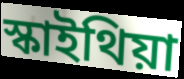
স্কাইথিয়া